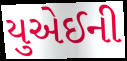
યુએઈની